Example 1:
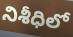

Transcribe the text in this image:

నిశీధిలో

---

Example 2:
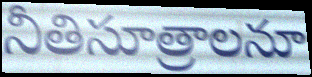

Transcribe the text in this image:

నీతిసూత్రాలనూ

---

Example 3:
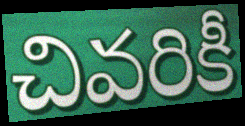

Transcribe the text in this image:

చివరికీ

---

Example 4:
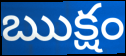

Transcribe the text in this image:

ఋక్షం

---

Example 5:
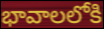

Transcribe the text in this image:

భావాలలోకి